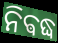
ନିଵଦ୍ଧ